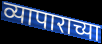
व्यापाराच्या